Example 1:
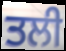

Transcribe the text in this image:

ਤਲੀ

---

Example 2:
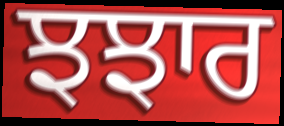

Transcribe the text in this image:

ਝਝਾਰ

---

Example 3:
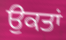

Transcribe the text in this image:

ਉਕਤਾਂ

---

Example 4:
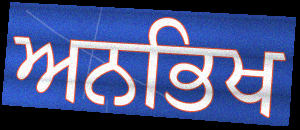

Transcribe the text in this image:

ਅਨਭਿਖ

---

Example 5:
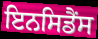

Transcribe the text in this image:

ਇਨਸਿਡੈਂਸ